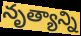
నృత్యాన్ని